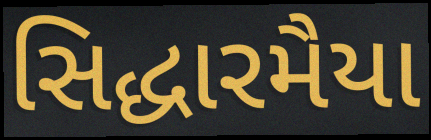
સિદ્ધારમૈયા